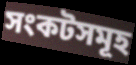
সংকটসমূহ